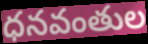
ధనవంతుల